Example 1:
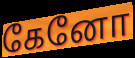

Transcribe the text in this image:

கேனோ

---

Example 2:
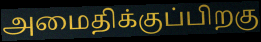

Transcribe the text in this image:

அமைதிக்குப்பிறகு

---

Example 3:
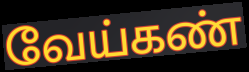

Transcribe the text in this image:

வேய்கண்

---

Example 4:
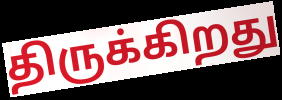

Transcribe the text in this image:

திருக்கிறது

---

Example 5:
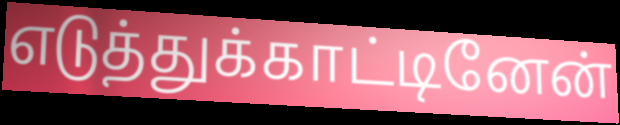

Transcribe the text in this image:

எடுத்துக்காட்டினேன்